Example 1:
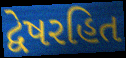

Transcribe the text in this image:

દ્વેષરહિત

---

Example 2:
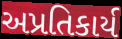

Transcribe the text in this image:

અપ્રતિકાર્ય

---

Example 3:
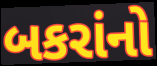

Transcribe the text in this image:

બકરાંનો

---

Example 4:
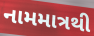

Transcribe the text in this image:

નામમાત્રથી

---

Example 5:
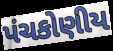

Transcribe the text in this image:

પંચકોણીય